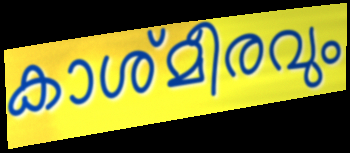
കാശ്മീരവും